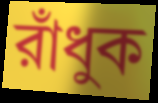
রাঁধুক